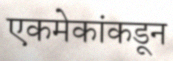
एकमेकांकडून